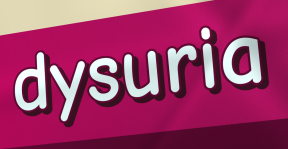
dysuria